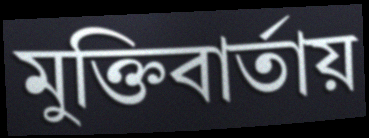
মুক্তিবার্তায়